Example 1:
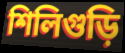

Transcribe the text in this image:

শিলিগুড়ি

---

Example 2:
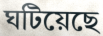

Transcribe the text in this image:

ঘটিয়েছে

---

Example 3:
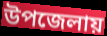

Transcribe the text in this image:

উপজেলায়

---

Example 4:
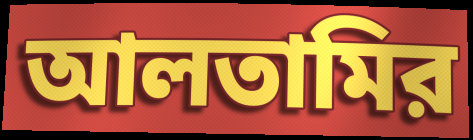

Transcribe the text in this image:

আলতামির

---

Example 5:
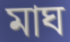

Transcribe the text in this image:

মাঘ